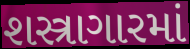
શસ્ત્રાગારમાં